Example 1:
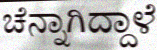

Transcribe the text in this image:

ಚೆನ್ನಾಗಿದ್ದಾಳೆ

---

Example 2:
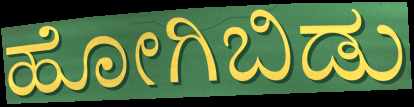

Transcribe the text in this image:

ಹೋಗಿಬಿಡು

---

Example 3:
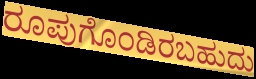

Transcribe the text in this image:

ರೂಪುಗೊಂಡಿರಬಹುದು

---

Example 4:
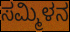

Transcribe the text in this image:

ಸಮ್ಮಿಳನ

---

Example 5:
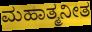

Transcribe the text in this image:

ಮಹಾತ್ಮನೀತ